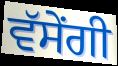
ਵੱਸੇਂਗੀ